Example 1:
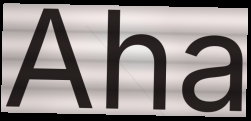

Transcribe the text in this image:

Aha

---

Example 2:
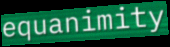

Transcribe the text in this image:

equanimity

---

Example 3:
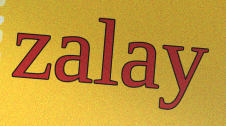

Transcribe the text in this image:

zalay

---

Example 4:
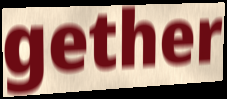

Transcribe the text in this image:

gether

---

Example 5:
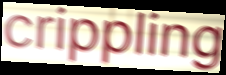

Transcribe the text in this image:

crippling